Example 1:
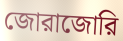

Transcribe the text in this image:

জোরাজোরি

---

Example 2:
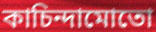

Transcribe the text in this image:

কাচিন্দামোতো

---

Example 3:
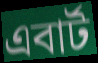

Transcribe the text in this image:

এবার্ট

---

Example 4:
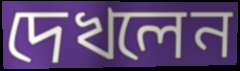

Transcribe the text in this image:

দেখলেন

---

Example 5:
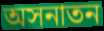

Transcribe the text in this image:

অসনাতন